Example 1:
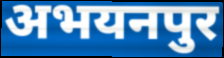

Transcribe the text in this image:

अभयनपुर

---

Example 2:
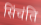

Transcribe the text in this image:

सिंचंति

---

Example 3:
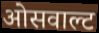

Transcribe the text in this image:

ओसवाल्ट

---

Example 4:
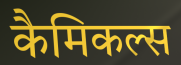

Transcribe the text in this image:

कैमिकल्स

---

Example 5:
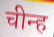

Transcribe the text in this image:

चीन्ह